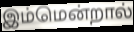
இம்மென்றால்